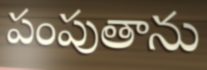
పంపుతాను